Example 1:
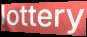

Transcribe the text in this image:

lottery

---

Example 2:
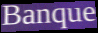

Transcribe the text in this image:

Banque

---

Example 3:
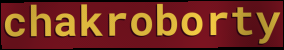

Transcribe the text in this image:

chakroborty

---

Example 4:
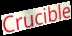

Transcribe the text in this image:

Crucible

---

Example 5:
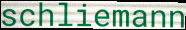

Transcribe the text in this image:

schliemann